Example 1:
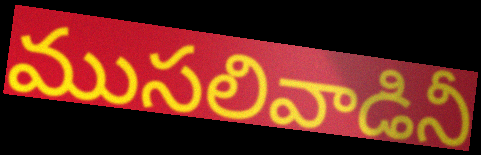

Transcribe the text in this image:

ముసలివాడినీ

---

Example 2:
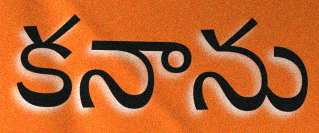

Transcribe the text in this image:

కనాను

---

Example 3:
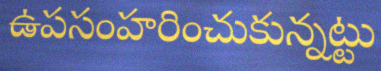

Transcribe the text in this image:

ఉపసంహరించుకున్నట్టు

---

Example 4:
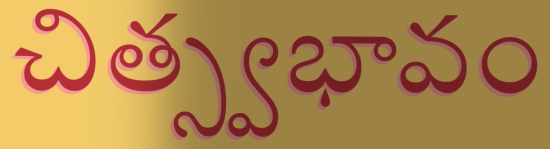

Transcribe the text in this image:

చిత్స్వభావం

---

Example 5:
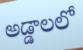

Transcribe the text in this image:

అడ్డాలలో